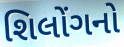
શિલોંગનો